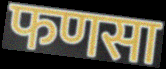
फणसा